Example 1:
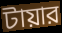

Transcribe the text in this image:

টায়ার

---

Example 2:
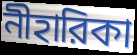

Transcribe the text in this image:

নীহারিকা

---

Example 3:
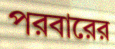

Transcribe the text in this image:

পরবারের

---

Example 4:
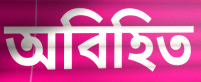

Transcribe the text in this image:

অবিহিত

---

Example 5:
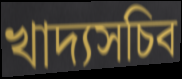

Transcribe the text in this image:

খাদ্যসচিব